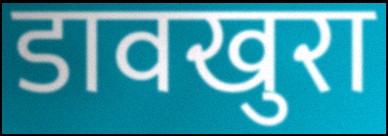
डावखुरा